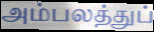
அம்பலத்துப்